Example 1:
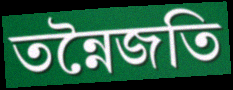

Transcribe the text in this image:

তন্নৈজতি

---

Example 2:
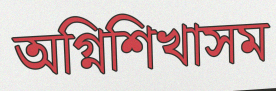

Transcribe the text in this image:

অগ্নিশিখাসম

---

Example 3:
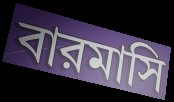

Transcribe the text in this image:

বারমাসি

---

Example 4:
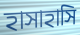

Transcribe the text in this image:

হাসাহাসি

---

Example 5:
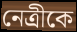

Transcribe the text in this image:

নেত্রীকে